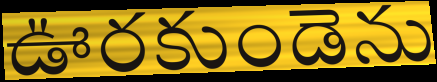
ఊరకుండెను